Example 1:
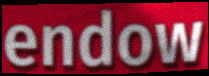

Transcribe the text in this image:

endow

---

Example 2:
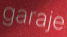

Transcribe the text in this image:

garaje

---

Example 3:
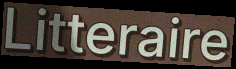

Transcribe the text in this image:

Litteraire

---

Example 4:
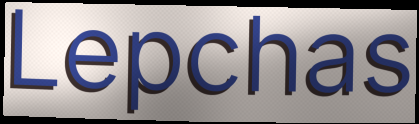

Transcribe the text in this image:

Lepchas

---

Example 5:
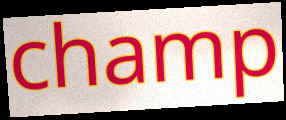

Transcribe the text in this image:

champ